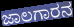
ಜಾಲಗಾರನ